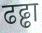
ढढ्ढा